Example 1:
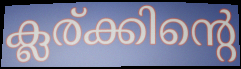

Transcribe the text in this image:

ക്ലര്ക്കിന്റെ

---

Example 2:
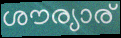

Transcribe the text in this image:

ശൗര്യാര്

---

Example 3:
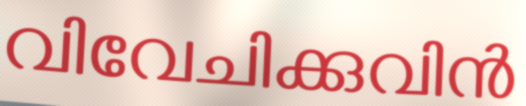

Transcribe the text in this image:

വിവേചിക്കുവിൻ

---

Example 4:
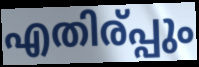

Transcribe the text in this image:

എതിര്പ്പും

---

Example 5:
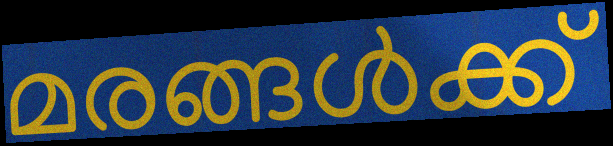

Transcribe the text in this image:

മരങ്ങൾക്ക്